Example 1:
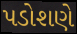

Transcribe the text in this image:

પડોશણે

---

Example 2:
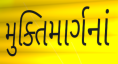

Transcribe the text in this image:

મુક્તિમાર્ગનાં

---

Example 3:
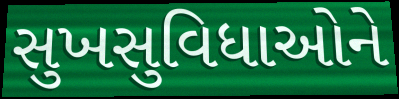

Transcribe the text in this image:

સુખસુવિધાઓને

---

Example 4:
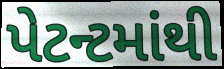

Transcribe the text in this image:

પેટન્ટમાંથી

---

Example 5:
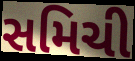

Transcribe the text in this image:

સમિચી